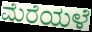
ಮೆರೆಯಳೆ